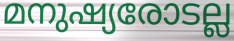
മനുഷ്യരോടല്ല